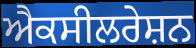
ਐਕਸੀਲਰੇਸ਼ਨ